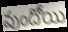
వుందోయి